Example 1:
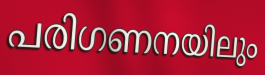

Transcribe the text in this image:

പരിഗണനയിലും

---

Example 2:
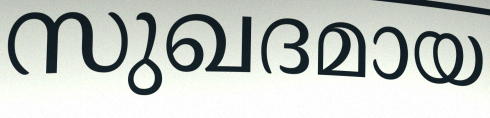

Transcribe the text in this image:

സുഖദമായ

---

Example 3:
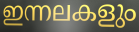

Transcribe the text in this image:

ഇന്നലകളും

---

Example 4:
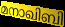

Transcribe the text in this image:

മനാഖിബി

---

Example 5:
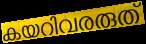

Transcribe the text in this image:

കയറിവരരുത്